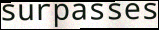
surpasses